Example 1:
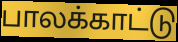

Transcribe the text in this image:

பாலக்காட்டு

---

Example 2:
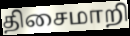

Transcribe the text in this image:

திசைமாறி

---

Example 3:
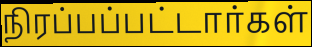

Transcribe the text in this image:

நிரப்பப்பட்டார்கள்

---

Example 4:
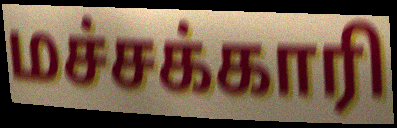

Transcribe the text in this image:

மச்சக்காரி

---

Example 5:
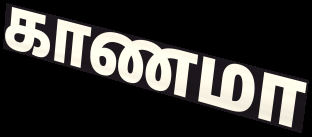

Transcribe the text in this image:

காணமா